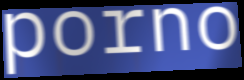
porno